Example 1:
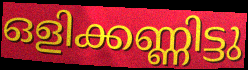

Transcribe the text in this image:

ഒളിക്കണ്ണിട്ടു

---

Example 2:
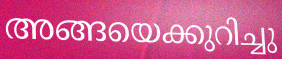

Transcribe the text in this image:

അങ്ങയെക്കുറിച്ചു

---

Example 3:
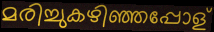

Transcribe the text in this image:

മരിച്ചുകഴിഞ്ഞപ്പോള്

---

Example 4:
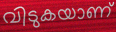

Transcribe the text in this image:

വിടുകയാണ്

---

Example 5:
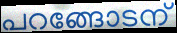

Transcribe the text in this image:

പറങ്ങോടന്